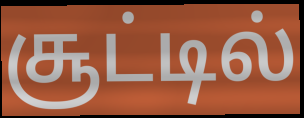
சூட்டில்